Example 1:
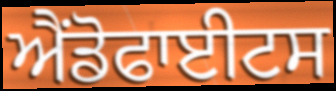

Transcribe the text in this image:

ਐਂਡੋਫਾਈਟਸ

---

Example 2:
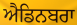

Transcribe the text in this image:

ਐਡਿਨਬਰਾ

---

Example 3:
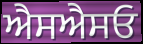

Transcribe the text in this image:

ਐਸਐਸਓ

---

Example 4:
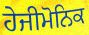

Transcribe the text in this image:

ਹੇਜੀਮੋਨਿਕ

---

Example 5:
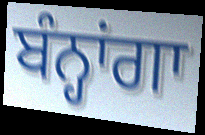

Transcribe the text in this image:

ਬੰਨ੍ਹਾਂਗਾ